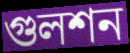
গুলশন